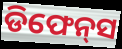
ଡିଫେନ୍‌ସ